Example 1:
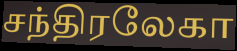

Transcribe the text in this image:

சந்திரலேகா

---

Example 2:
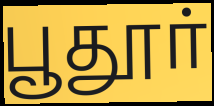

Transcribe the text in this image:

பூதூர்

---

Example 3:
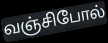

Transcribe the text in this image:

வஞ்சிபோல்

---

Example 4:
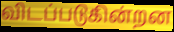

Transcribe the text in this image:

விடப்படுகின்றன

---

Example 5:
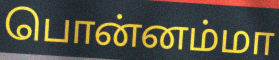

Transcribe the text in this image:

பொன்னம்மா